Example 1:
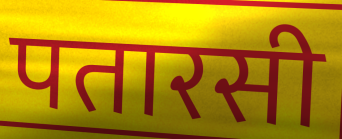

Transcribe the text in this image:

पतारसी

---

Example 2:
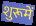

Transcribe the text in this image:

शुरूमें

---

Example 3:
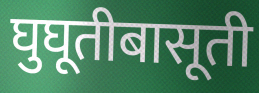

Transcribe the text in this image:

घुघूतीबासूती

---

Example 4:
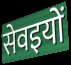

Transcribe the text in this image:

सेवइयों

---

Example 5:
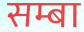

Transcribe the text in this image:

सम्बा